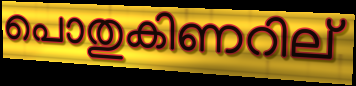
പൊതുകിണറില്